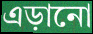
এড়ানো